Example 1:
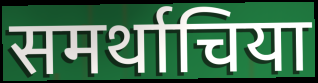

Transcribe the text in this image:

समर्थाचिया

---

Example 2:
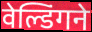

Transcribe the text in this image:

वेल्डिंगने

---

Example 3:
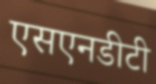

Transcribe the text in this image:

एसएनडीटी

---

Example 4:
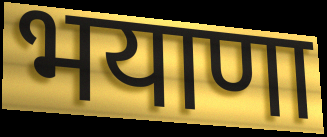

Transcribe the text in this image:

भयाणा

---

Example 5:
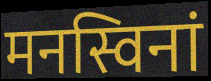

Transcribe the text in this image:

मनस्विनां